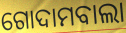
ଗୋଦାମବାଲା